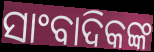
ସାଂବାଦିକଙ୍କ